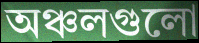
অঞ্চলগুলো